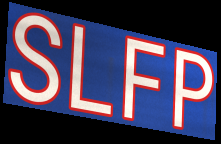
SLFP